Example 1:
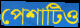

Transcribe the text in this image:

পেশাটিও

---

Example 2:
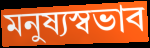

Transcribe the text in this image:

মনুষ্যস্বভাব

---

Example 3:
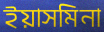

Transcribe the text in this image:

ইয়াসমিনা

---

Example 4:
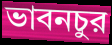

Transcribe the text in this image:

ভাবনচুর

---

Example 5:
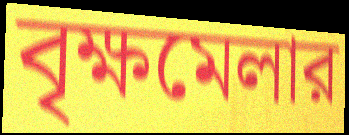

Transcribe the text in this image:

বৃক্ষমেলার